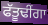
ਫੱਤੂਢੀਂਗਾ